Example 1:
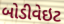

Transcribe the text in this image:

બોડીવેઇટ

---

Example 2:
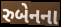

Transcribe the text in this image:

રુબેનના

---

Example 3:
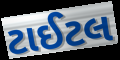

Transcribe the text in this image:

ટાઈટલ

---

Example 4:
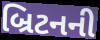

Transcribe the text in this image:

બ્રિટનની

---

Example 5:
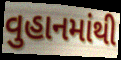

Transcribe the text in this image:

વુહાનમાંથી